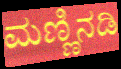
ಮಣ್ಣಿನಡಿ